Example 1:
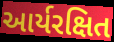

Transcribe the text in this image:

આર્યરક્ષિત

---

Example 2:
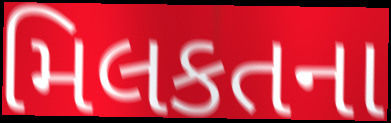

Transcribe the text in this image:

મિલકતના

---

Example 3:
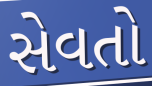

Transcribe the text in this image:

સેવતો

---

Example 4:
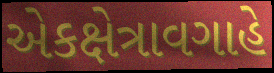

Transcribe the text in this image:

એકક્ષેત્રાવગાહે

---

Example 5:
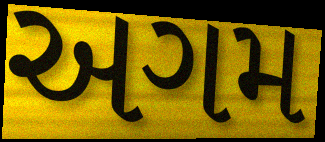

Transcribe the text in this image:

અગમ